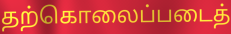
தற்கொலைப்படைத்